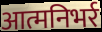
आत्मनिभर्र